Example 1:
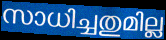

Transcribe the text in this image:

സാധിച്ചതുമില്ല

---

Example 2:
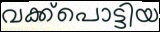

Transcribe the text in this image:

വക്ക്പൊട്ടിയ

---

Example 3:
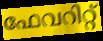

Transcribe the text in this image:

ഫേവറിറ്റ്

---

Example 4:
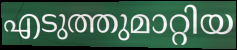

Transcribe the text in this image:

എടുത്തുമാറ്റിയ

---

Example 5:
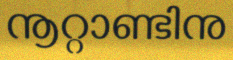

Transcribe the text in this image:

നൂറ്റാണ്ടിനു